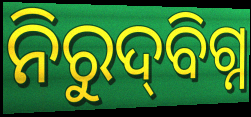
ନିରୁଦ୍‌ବିଗ୍ନ